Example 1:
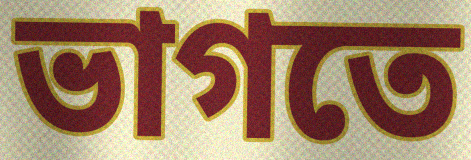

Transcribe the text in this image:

ভাগতে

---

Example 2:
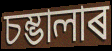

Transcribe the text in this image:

চম্ভালাৰ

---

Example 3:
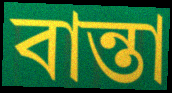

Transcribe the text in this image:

বান্তা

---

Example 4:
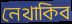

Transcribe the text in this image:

নেথাকিব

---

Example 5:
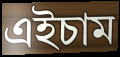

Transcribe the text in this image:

এইচাম